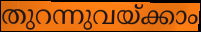
തുറന്നുവയ്ക്കാം